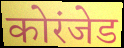
कोरंजेड